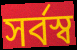
সৰ্বস্ব